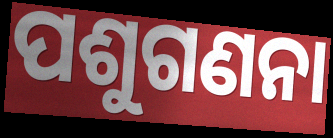
ପଶୁଗଣନା